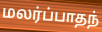
மலர்ப்பாதந்